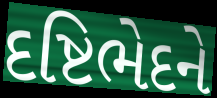
દષ્ટિભેદને